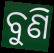
ବୁଣି